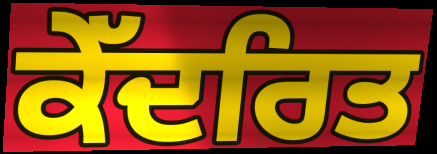
ਕੇੱਦਰਿਤ